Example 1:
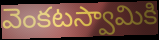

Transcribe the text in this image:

వెంకటస్వామికి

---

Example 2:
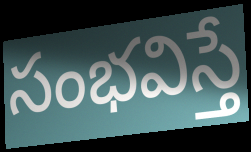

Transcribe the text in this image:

సంభవిస్తే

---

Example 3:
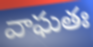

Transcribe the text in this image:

వాఘతః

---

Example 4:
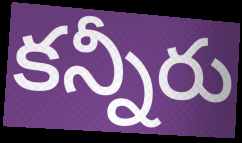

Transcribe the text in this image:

కన్నీరు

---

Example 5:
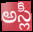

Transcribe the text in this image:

అస్లీ